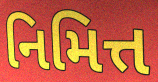
નિમિત્ત